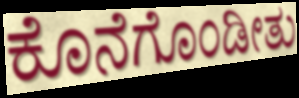
ಕೊನೆಗೊಂಡೀತು